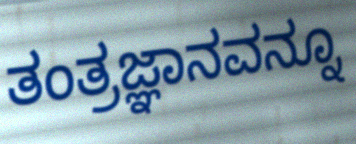
ತಂತ್ರಜ್ಞಾನವನ್ನೂ